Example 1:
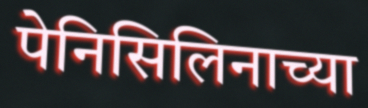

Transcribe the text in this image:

पेनिसिलिनाच्या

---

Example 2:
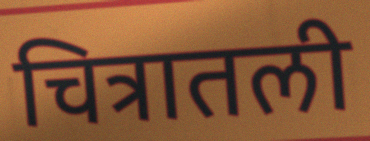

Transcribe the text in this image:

चित्रातली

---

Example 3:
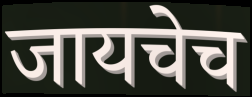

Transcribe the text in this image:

जायचेच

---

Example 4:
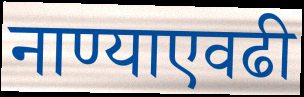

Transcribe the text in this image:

नाण्याएवढी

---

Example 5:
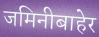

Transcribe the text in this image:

जमिनीबाहेर